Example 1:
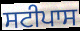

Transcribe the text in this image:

ਸਟੀਪਾਸ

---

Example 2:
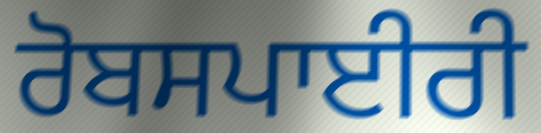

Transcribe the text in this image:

ਰੋਬਸਪਾਈਰੀ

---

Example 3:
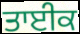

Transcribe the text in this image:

ਤਾਈਕ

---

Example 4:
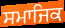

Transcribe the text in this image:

ਸਮਾਜਿਕ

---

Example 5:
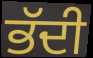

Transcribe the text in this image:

ਭੱਦੀ